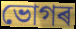
ভোগৰ